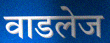
वाडलेज